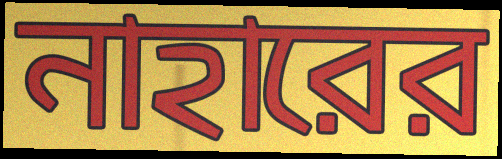
নাহারের